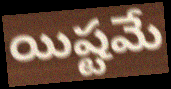
యిష్టమే